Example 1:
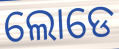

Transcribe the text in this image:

ଲୋଡେ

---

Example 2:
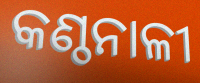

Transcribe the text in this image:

କଣ୍ଠନାଳୀ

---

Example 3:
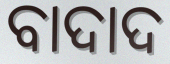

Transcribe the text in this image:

ବାଦାଦ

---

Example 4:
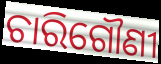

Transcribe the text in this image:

ଚାରିଗୌଣୀ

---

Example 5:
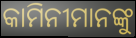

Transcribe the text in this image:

କାମିନୀମାନଙ୍କୁ